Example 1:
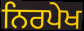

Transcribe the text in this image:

ਨਿਰਪੇਖ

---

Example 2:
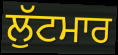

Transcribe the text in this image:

ਲੁੱਟਮਾਰ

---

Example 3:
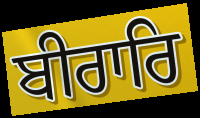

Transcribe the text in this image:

ਬੀਰਾਰਿ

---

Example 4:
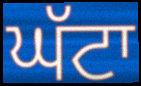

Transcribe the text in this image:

ਘੱਟਾ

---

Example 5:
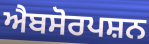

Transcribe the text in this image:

ਐਬਸੋਰਪਸ਼ਨ